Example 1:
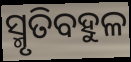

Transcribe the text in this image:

ସ୍ମୃତିବହୁଳ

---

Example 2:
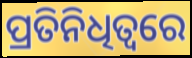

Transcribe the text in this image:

ପ୍ରତିନିଧିତ୍ବରେ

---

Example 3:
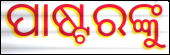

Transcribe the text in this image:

ପାଷ୍ଟରଙ୍କୁ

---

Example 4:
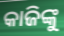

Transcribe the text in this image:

କାଜିଙ୍କୁ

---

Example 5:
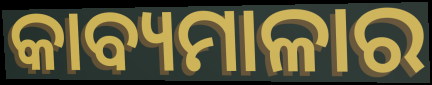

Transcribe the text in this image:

କାବ୍ୟମାଳାର